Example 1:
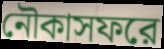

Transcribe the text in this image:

নৌকাসফরে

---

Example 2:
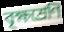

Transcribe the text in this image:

বৃক্ষশ্রেণি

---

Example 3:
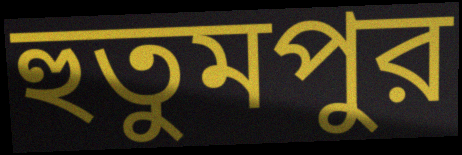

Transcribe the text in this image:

হুতুমপুর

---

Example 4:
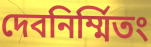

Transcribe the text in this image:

দেবনির্ম্মিতং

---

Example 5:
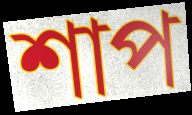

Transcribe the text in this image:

শাপ